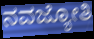
ನವಜ್ಯೋತಿ